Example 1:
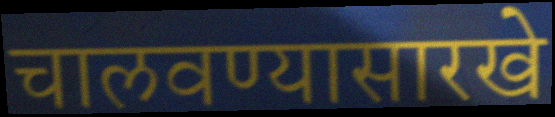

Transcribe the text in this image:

चालवण्यासारखे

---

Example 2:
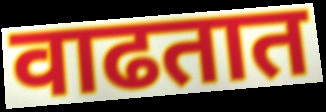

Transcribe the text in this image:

वाढतात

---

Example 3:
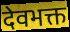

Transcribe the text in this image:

देवभक्त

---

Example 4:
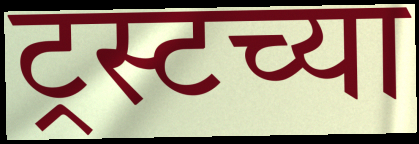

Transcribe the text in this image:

ट्रस्टच्या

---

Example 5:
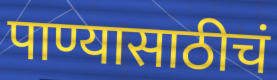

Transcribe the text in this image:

पाण्यासाठीचं